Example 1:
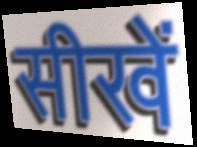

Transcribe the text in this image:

सीखें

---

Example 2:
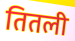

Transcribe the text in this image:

तितली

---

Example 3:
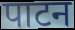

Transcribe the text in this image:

पाटन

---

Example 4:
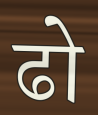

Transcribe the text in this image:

ढो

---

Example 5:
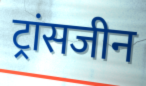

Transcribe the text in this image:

ट्रांसजीन